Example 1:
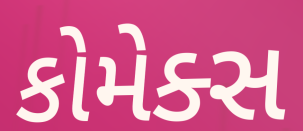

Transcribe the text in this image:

કોમેક્સ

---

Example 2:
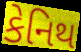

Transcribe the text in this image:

કેનિથ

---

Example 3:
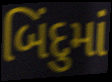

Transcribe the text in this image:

બિંદુમાં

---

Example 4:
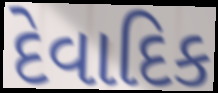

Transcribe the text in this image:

દેવાદિક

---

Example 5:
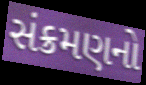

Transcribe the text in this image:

સંક્રમણનો